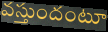
వస్తుందంటూ